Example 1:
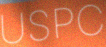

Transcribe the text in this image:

USPC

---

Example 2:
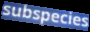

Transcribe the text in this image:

subspecies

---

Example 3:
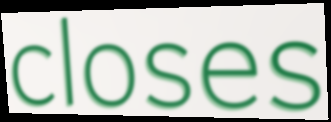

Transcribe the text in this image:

closes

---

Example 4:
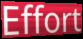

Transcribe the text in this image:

Effort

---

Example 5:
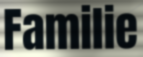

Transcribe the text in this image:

Familie